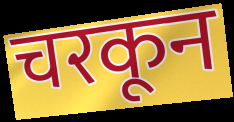
चरकून